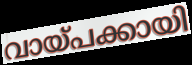
വായ്പക്കായി